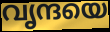
വൃന്ദയെ